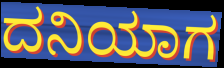
ದನಿಯಾಗ